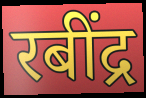
रबींद्र